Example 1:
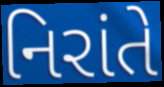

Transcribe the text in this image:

નિરાંતે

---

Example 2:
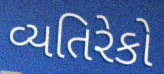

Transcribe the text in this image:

વ્યતિરેકો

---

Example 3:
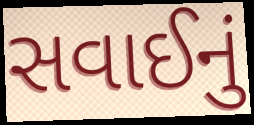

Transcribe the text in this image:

સવાઈનું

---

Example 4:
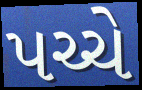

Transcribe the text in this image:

પચ્ચે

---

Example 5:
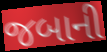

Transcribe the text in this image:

જબાની